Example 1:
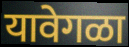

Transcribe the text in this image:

यावेगळा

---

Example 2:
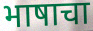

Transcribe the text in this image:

भाषाचा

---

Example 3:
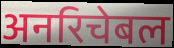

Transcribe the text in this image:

अनरिचेबल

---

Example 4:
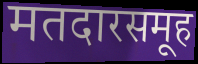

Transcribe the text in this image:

मतदारसमूह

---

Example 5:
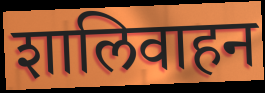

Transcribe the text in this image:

शालिवाहन